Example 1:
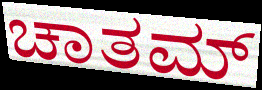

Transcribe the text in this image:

ಚಾತಮ್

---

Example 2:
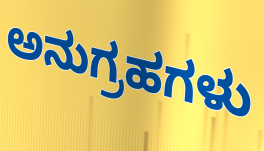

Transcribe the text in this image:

ಅನುಗ್ರಹಗಳು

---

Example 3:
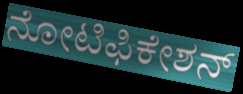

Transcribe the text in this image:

ನೋಟಿಫಿಕೇಶನ್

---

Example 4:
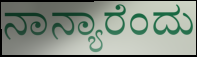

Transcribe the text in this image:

ನಾನ್ಯಾರೆಂದು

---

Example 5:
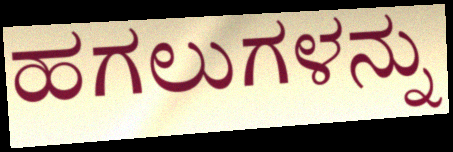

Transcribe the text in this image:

ಹಗಲುಗಳನ್ನು